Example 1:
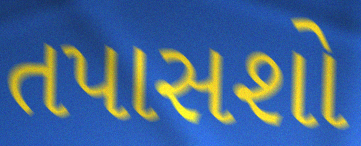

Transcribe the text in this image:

તપાસશો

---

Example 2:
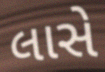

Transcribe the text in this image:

લાસે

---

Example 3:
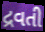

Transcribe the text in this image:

દ્રવતી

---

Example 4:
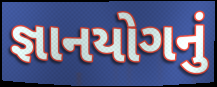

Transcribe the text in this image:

જ્ઞાનયોગનું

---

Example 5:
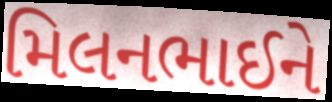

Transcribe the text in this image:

મિલનભાઈને